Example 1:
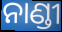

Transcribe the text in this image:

ନାଣ୍ଡୀ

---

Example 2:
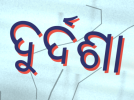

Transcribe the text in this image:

ଦୁର୍ଦଶା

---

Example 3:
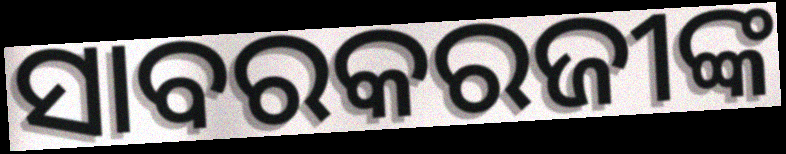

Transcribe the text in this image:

ସାବରକରଜୀଙ୍କ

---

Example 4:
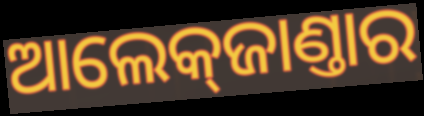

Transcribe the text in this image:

ଆଲେକ୍‌ଜାଣ୍ତାର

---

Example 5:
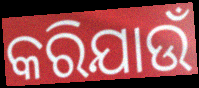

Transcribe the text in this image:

କରିଯାଉଁ